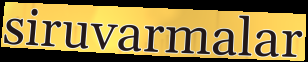
siruvarmalar